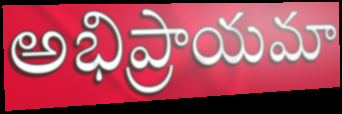
అభిప్రాయమా